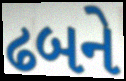
ઢબને